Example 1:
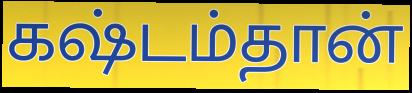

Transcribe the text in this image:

கஷ்டம்தான்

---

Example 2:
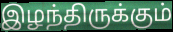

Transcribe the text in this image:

இழந்திருக்கும்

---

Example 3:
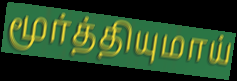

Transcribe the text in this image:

மூர்த்தியுமாய்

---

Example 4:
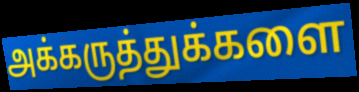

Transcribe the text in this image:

அக்கருத்துக்களை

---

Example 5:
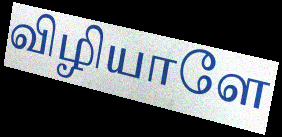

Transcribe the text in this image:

விழியாளே